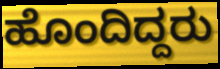
ಹೊಂದಿದ್ದರು